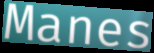
Manes